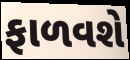
ફાળવશે